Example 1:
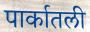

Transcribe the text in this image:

पार्कातली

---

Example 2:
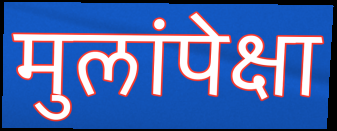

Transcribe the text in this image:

मुलांपेक्षा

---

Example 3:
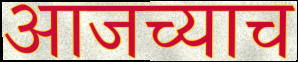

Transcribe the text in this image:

आजच्याच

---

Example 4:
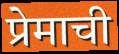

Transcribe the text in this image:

प्रेमाची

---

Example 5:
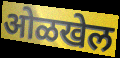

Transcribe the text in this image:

ओळखेल